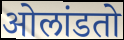
ओलांडतो